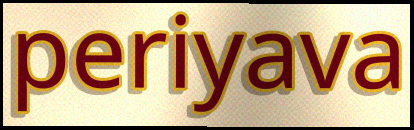
periyava